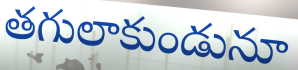
తగులాకుండునూ